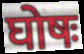
घोषः